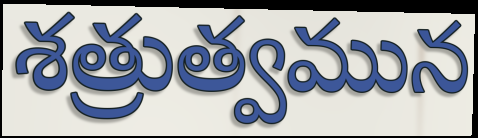
శత్రుత్వమున